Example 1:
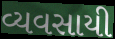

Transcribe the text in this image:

વ્યવસાયી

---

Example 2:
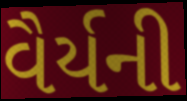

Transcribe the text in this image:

વૈર્યની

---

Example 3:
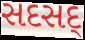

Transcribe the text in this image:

સદસદ્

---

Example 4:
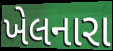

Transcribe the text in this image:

ખેલનારા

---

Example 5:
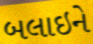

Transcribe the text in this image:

બલાઇને